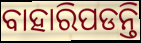
ବାହାରିପଡନ୍ତି